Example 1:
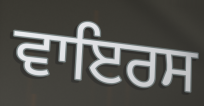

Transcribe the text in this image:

ਵਾਇਰਸ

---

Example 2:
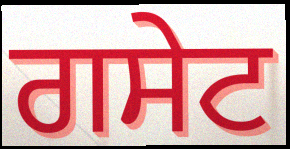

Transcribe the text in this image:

ਗਸੇਟ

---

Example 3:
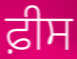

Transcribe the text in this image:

ਫ਼ੀਸ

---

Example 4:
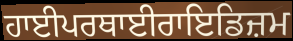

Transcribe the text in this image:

ਹਾਈਪਰਥਾਈਰਾਇਡਿਜ਼ਮ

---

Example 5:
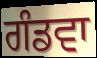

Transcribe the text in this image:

ਗੰਡਵਾ